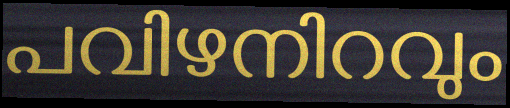
പവിഴനിറവും